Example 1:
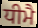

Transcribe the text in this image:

ਧੀਮੈ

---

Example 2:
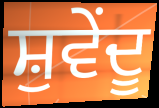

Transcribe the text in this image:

ਸ਼ੁਵੇਂਦੂ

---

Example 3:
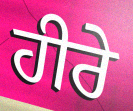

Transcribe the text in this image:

ਹੀਰੇ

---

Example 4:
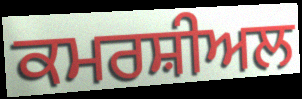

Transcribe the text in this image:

ਕਮਰਸ਼ੀਅਲ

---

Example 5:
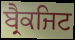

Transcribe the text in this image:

ਬ੍ਰੈਕਜਿਟ